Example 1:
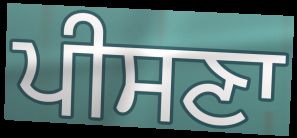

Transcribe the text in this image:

ਪੀਸਣਾ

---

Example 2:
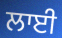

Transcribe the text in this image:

ਲਾਈ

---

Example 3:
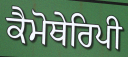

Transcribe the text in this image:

ਕੈਮੋਥੇਰਿਪੀ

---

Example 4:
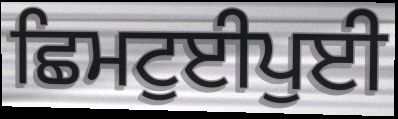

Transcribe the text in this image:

ਛਿਮਟੁਈਪੁਈ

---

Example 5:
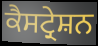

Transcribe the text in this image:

ਕੈਸਟ੍ਰੇਸ਼ਨ